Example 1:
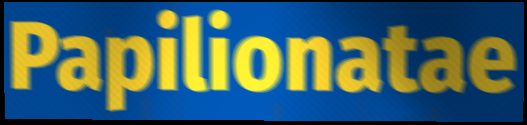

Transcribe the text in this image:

Papilionatae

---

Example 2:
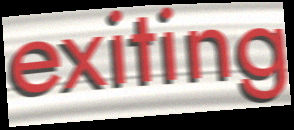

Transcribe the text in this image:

exiting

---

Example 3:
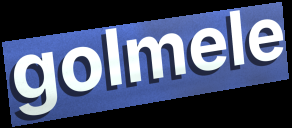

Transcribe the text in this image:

golmele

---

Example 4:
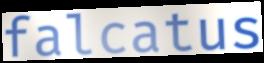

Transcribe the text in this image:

falcatus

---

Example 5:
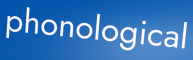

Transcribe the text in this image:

phonological